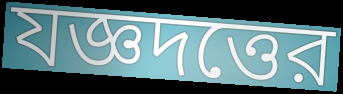
যজ্ঞদত্তের